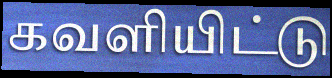
கவளியிட்டு